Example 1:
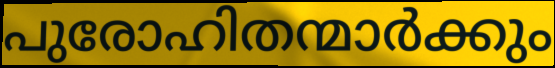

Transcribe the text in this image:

പുരോഹിതന്മാർക്കും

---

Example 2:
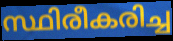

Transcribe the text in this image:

സ്ഥിരീകരിച്ച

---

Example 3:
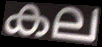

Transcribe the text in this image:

കല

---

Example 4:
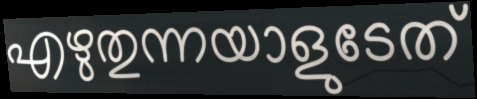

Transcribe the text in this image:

എഴുതുന്നയാളുടേത്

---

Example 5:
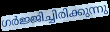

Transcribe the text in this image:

ഗർജ്ജിച്ചിരിക്കുന്നു